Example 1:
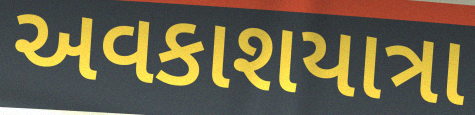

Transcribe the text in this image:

અવકાશયાત્રા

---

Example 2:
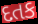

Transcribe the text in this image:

દતક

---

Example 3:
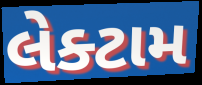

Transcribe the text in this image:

લેક્ટામ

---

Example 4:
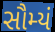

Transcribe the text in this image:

સૌમ્યં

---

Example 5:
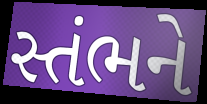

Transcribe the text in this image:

સ્તંભને